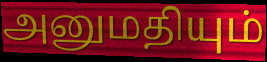
அனுமதியும்